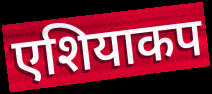
एशियाकप